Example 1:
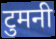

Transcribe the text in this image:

टुमनी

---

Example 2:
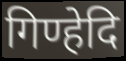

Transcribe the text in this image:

गिण्हेदि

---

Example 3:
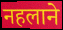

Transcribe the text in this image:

नहलाने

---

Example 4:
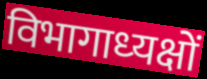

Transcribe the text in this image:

विभागाध्‍यक्षों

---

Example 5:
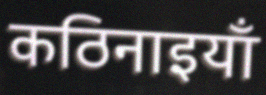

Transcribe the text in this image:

कठिनाइयाँ